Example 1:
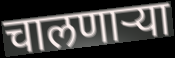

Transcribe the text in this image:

चालणाऱ्या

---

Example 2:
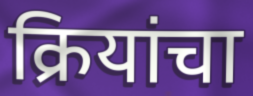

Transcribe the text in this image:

क्रियांचा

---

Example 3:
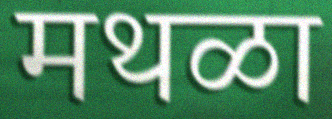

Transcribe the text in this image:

मथळा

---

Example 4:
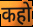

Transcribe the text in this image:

कहो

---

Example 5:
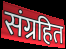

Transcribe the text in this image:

संग्रहित